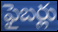
ఫైబర్లు